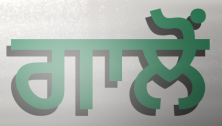
ਗਾਲੋਂ